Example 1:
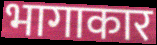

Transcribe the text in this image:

भागाकार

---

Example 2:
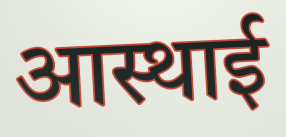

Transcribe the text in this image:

आस्थाई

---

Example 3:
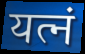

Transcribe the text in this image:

यत्नं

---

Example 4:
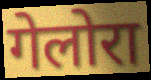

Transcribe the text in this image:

गेलोरा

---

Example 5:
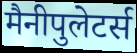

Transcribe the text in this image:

मैनीपुलेटर्स